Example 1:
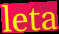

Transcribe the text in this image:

leta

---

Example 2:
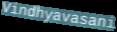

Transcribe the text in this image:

Vindhyavasani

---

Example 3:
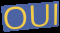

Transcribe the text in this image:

OUI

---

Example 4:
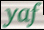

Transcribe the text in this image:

yaf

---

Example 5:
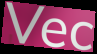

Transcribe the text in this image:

Vec